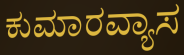
ಕುಮಾರವ್ಯಾಸ